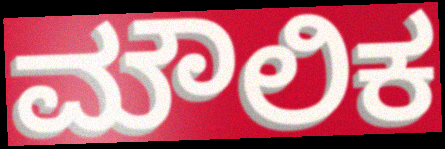
ಮೌಲಿಕ